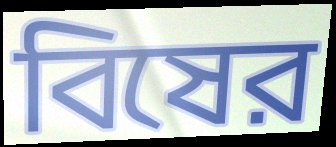
বিষের